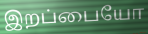
இறப்பையோ